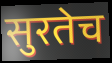
सुरतेच